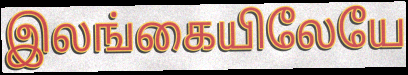
இலங்கையிலேயே